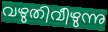
വഴുതിവീഴുന്നു